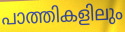
പാത്തികളിലും